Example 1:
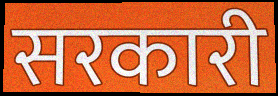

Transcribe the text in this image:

सरकारी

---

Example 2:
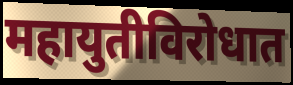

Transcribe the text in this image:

महायुतीविरोधात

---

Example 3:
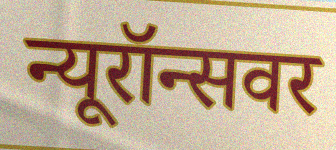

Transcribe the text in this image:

न्यूरॉन्सवर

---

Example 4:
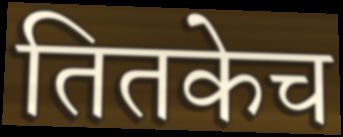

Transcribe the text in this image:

तितकेच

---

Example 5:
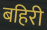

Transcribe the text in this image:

बहिरी